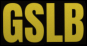
GSLB